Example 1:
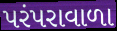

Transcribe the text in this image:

પરંપરાવાળા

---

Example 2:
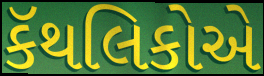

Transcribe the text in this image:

કૅથલિકોએ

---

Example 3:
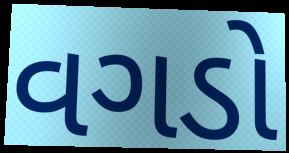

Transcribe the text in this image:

વગડો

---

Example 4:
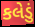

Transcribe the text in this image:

કલેડું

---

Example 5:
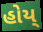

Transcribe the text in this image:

હોય્